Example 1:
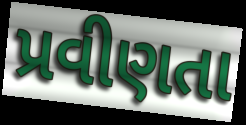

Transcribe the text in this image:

પ્રવીણતા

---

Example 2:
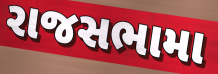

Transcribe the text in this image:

રાજસભામા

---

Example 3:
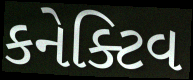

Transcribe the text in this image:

કનેક્ટિવ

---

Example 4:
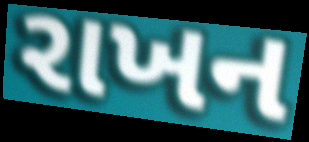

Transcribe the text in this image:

રાખન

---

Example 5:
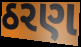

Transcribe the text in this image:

ઠરણ